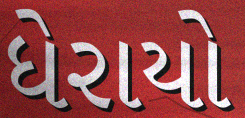
ધેરાયો